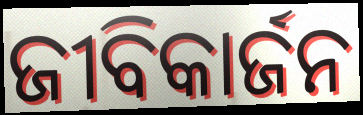
ଜୀବିକାର୍ଜନ